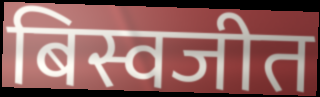
बिस्वजीत